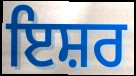
ਇਸ਼ਰ